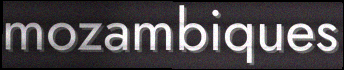
mozambiques